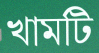
খামটি